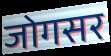
जोगसर